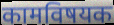
कामविषयक